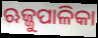
ଋଜ୍ଜୁପାଳିକା